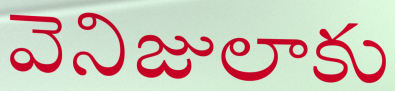
వెనిజులాకు